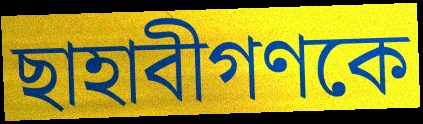
ছাহাবীগণকে